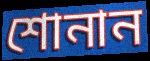
শোনান